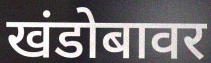
खंडोबावर